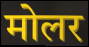
मोलर